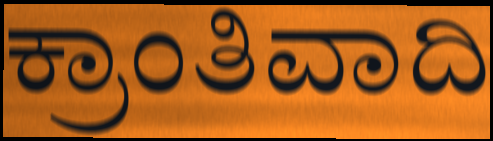
ಕ್ರಾಂತಿವಾದಿ